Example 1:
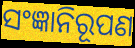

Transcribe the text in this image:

ସଂଜ୍ଞାନିରୂପଣ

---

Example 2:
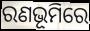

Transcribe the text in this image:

ରଣଭୂମିରେ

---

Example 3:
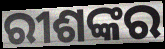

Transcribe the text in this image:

ରୀଶଙ୍କର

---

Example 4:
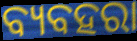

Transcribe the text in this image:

ବ୍ୟବହରା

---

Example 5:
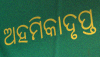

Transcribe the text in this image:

ଅହମିକାଦୃପ୍ତ